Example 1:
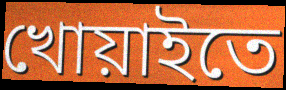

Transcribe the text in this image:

খোয়াইতে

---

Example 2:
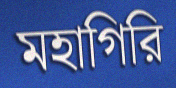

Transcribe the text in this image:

মহাগিরি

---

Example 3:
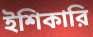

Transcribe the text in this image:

ইশিকারি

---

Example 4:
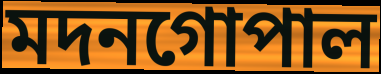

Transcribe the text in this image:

মদনগোপাল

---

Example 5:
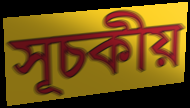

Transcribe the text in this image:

সূচকীয়